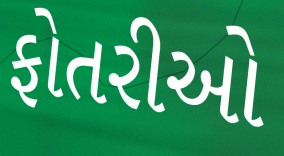
ફોતરીઓ